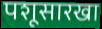
पशूसारखा